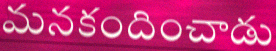
మనకందించాడు